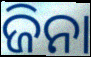
ଜିନା